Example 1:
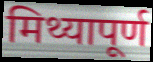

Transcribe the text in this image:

मिथ्यापूर्ण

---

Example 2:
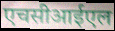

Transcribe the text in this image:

एचसीआईएल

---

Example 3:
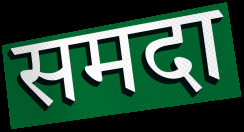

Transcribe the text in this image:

समदा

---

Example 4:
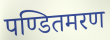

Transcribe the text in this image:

पण्डितमरण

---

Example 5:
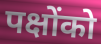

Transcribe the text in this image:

पक्षोंको